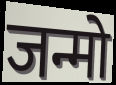
जन्मो